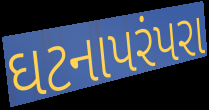
ઘટનાપરંપરા